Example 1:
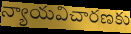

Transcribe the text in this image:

న్యాయవిచారణకు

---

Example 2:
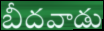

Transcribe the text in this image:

బీదవాడు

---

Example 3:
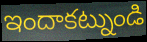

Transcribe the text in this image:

ఇందాకట్నుండి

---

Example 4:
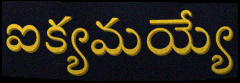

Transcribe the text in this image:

ఐక్యమయ్యే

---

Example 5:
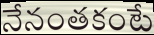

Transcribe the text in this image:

నేనంతకంటే